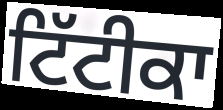
ਟਿੱਟੀਕਾ